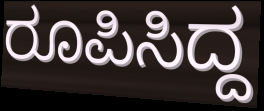
ರೂಪಿಸಿದ್ದ